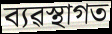
ব্যৱস্থাগত